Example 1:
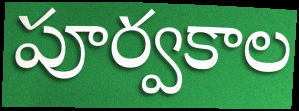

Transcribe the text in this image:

పూర్వకాల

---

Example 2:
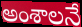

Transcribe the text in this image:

అంశాలనే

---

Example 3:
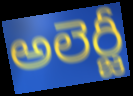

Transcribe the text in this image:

అలెర్జీ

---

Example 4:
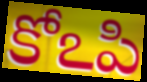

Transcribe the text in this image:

కోఽపి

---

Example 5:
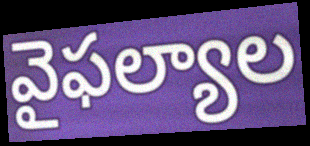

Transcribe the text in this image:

వైఫల్యాల